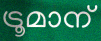
ട്രൂമാന്